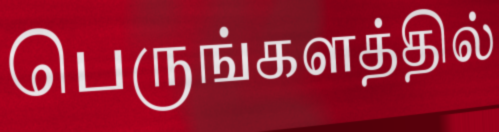
பெருங்களத்தில்